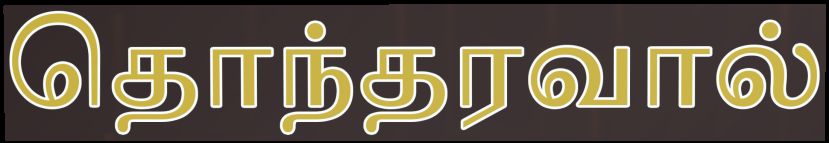
தொந்தரவால்